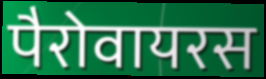
पैरोवायरस